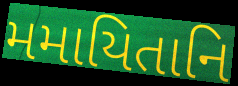
મમાયિતાનિ